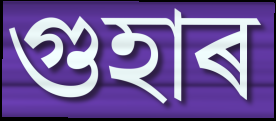
গুহাৰ